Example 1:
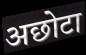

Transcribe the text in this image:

अछोटा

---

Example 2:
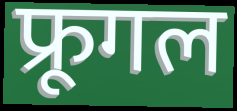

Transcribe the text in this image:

फ्रूगल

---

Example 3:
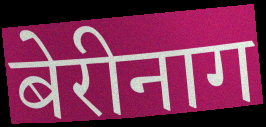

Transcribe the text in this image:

बेरीनाग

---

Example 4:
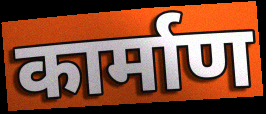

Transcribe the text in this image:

कार्माण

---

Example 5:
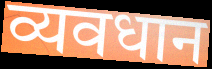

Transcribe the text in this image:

व्यवधान